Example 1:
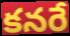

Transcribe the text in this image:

కనరే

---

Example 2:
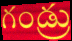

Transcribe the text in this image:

గండ్రు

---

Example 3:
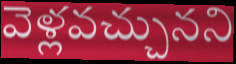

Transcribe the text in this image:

వెళ్లవచ్చునని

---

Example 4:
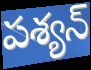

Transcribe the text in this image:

పశ్యన్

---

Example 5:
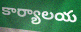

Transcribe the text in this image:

కార్యాలయ